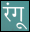
रंगू